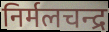
निर्मलचन्द्र